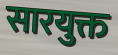
सारयुक्त